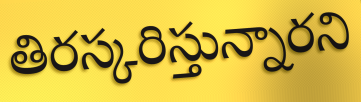
తిరస్కరిస్తున్నారని